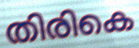
തിരികെ